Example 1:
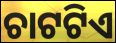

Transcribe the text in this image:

ଚାଟଟିଏ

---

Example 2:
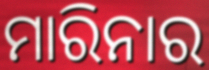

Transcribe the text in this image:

ମାରିନାର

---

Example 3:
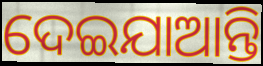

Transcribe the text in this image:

ଦେଇଯାଆନ୍ତି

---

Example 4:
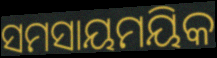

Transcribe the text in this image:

ସମସାୟମୟିକ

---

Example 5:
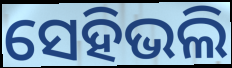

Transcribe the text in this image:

ସେହିଭଲି